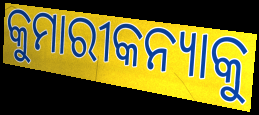
କୁମାରୀକନ୍ୟାକୁ